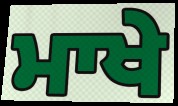
ਮਾਖੇ